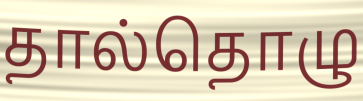
தால்தொழு